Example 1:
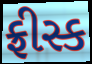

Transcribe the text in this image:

ફ્રીસ્ક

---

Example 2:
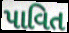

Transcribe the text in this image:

પાવિત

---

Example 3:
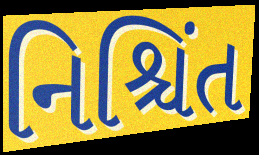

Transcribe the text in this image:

નિશ્ચિંત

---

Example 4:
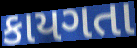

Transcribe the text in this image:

કાયગતા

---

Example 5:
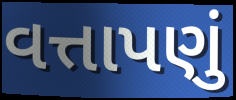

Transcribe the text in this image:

વત્તાપણું